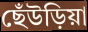
ছেঁউড়িয়া